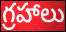
గ్రహాలు